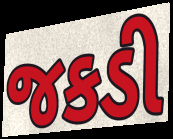
જકડી